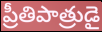
ప్రీతిపాత్రుడై